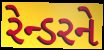
રેન્ડરને